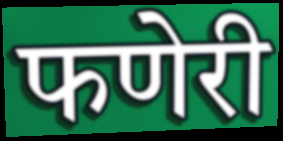
फणेरी